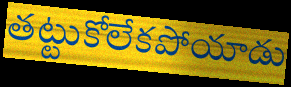
తట్టుకోలేకపోయాడు